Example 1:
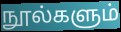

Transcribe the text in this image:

நூல்களும்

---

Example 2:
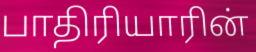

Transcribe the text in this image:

பாதிரியாரின்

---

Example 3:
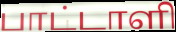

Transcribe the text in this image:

பாட்டாளி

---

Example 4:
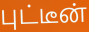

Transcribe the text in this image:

புட்டீன்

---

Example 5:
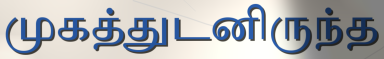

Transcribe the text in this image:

முகத்துடனிருந்த